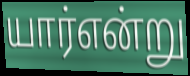
யார்என்று